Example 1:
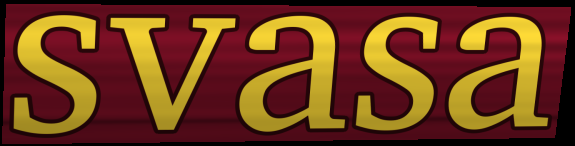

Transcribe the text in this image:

svasa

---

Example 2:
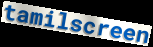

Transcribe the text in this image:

tamilscreen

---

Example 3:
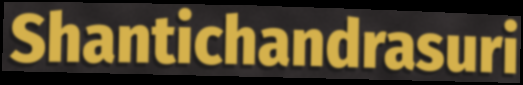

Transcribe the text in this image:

Shantichandrasuri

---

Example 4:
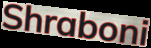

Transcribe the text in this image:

Shraboni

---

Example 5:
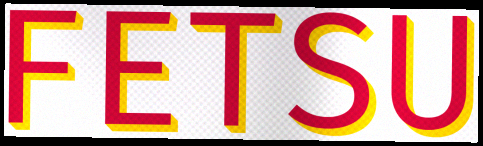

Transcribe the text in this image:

FETSU